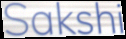
Sakshi